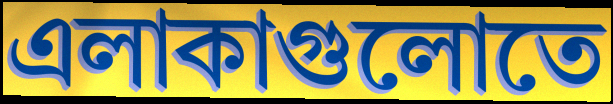
এলাকাগুলোতে